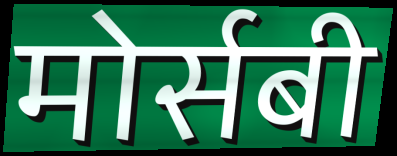
मोर्सबी